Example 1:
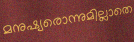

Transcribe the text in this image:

മനുഷ്യരൊന്നുമില്ലാതെ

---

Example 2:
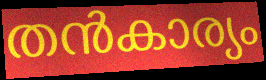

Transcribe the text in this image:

തൻകാര്യം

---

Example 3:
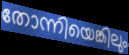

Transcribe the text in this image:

തോന്നിയെങ്കിലും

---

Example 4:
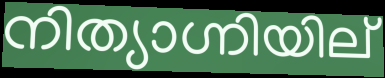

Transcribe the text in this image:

നിത്യാഗ്നിയില്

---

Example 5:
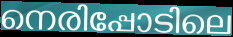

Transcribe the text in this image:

നെരിപ്പോടിലെ